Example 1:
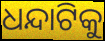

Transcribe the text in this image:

ଧନ୍ଦାଟିକୁ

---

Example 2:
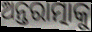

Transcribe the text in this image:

ଅନ୍ତରାତ୍ମାକୁ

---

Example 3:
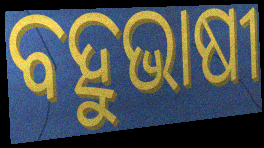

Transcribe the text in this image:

ବହୁଭାଷୀ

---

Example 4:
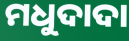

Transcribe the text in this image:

ମଧୁଦାଦା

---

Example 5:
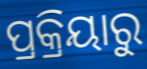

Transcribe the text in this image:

ପ୍ରକ୍ରିୟାରୁ